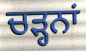
ਚੜ੍ਹਨਾਂ